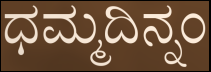
ಧಮ್ಮದಿನ್ನಂ